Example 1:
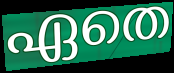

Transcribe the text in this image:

ഏതെ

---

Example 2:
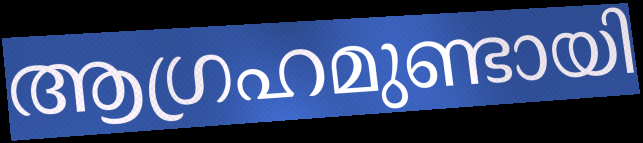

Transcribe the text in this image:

ആഗ്രഹമുണ്ടായി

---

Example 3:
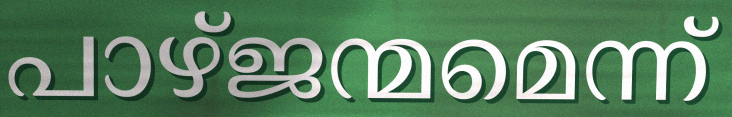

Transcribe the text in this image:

പാഴ്ജന്മമെന്ന്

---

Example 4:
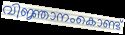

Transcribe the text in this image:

വിജ്ഞാനംകൊണ്ട്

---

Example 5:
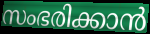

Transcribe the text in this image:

സംഭരിക്കാൻ